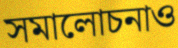
সমালোচনাও